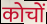
कोचों